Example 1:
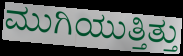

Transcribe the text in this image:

ಮುಗಿಯುತ್ತಿತ್ತು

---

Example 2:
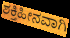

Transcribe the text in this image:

ಶಕ್ತಿಹೀನವಾಗಿ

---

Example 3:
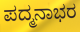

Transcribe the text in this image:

ಪದ್ಮನಾಭರ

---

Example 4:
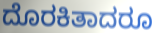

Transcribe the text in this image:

ದೊರಕಿತಾದರೂ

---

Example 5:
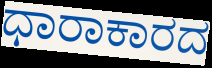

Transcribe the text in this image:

ಧಾರಾಕಾರದ